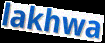
lakhwa